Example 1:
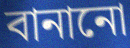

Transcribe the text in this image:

বানানো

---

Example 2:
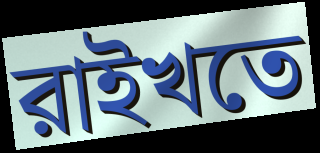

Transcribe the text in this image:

রাইখতে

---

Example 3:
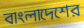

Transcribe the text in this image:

বাংলাদেশের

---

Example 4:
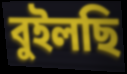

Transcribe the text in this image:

বুইলছি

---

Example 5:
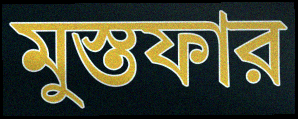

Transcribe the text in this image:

মুস্তফার